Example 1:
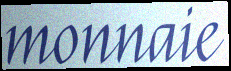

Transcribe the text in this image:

monnaie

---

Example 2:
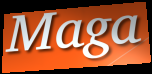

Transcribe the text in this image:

Maga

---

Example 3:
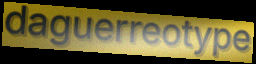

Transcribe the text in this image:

daguerreotype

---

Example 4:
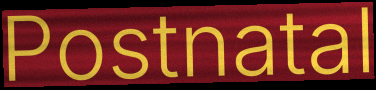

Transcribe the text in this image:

Postnatal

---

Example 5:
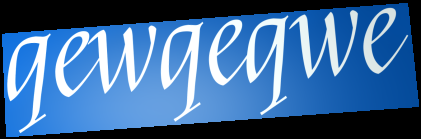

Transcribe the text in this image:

qewqeqwe